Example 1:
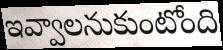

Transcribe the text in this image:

ఇవ్వాలనుకుంటోంది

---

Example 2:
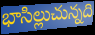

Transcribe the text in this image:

భాసిల్లుచున్నది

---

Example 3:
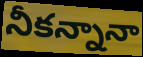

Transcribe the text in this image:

నీకన్నానా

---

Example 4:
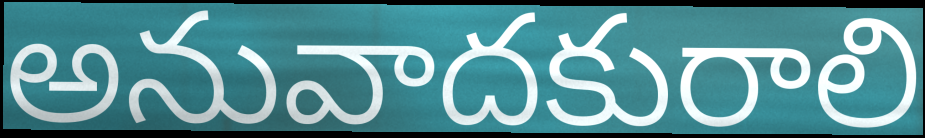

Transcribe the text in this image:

అనువాదకురాలి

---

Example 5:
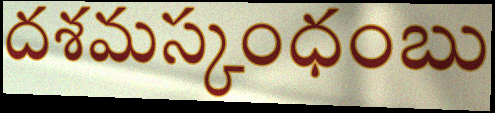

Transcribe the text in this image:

దశమస్కంధంబు